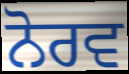
ਨੋਰਵ